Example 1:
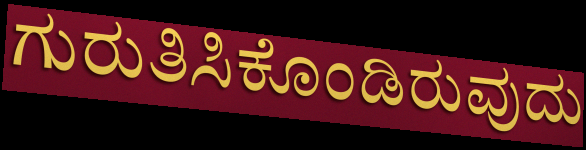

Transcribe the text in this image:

ಗುರುತಿಸಿಕೊಂಡಿರುವುದು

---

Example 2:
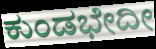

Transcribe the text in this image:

ಕುಂಡಭೇದೀ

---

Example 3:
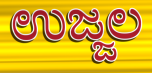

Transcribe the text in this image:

ಉಜ್ಜಲ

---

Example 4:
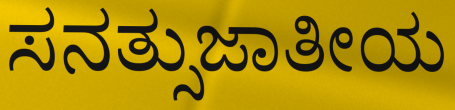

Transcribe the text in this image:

ಸನತ್ಸುಜಾತೀಯ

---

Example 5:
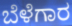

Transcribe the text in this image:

ಬೆಳೆಗಾರ